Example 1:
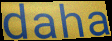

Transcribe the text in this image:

daha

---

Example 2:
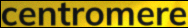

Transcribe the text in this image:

centromere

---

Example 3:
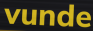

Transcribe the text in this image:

vunde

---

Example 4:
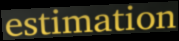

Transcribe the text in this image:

estimation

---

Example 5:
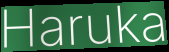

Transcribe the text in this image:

Haruka